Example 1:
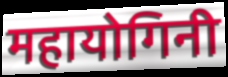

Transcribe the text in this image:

महायोगिनी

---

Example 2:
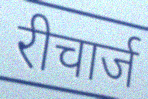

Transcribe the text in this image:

रीचार्ज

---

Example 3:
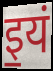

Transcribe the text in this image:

इ॒यं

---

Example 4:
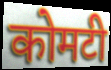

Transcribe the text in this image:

कोमटी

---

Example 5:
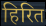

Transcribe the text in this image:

हिरित